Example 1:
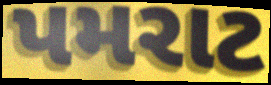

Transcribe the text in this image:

પમરાટ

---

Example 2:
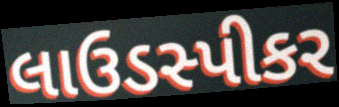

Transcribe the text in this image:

લાઉડસ્પીકર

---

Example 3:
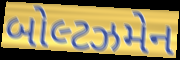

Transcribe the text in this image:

બોલ્ટઝમેન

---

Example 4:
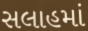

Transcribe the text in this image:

સલાહમાં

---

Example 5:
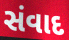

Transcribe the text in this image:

સંવાદ